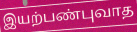
இயற்பண்புவாத